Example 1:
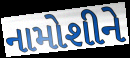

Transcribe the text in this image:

નામોશીને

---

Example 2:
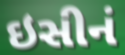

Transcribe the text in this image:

ઇસીનં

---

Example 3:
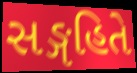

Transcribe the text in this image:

સઙ્ગહિતે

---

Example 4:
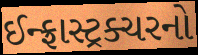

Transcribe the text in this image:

ઈન્ફ્રાસ્ટ્રક્ચરનો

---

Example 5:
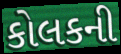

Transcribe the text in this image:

કોલકની